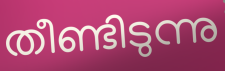
തീണ്ടിടുന്നു